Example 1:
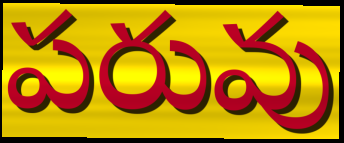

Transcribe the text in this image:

పరువు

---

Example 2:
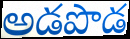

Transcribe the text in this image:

అడపొడ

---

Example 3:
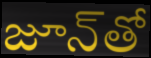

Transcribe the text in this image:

జూన్‌తో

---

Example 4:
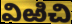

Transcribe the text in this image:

విఱిచి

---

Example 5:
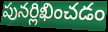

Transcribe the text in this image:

పునర్లిఖించడం